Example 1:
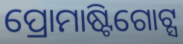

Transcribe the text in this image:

ପ୍ରୋମାଷ୍ଟିଗୋଟ୍ସ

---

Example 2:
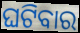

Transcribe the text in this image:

ଘଟିବାର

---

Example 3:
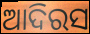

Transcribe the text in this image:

ଆଦିରସ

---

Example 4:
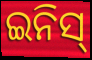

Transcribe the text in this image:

ଇନିସ୍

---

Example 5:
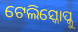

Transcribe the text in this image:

ଟେଲିସ୍କୋପ୍କୁ